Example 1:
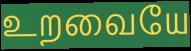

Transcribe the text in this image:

உறவையே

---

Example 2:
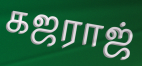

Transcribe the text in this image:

கஜராஜ்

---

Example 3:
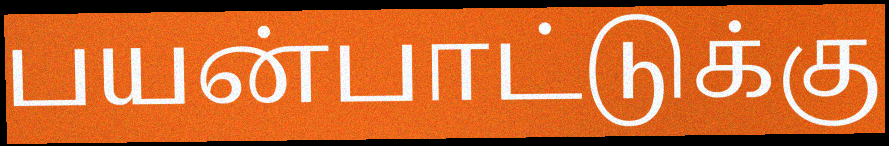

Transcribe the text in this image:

பயன்பாட்டுக்கு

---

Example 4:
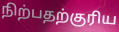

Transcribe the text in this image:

நிற்பதற்குரிய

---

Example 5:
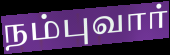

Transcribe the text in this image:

நம்புவார்